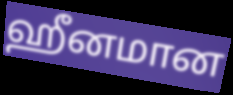
ஹீனமான